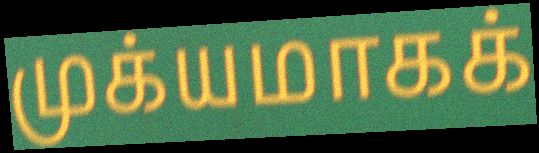
முக்யமாகக்